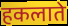
हकलाते